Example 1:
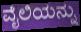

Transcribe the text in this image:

ವೈಲಿಯನ್ನು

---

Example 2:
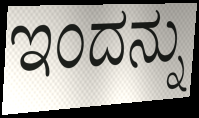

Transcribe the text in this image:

ಇಂದನ್ನು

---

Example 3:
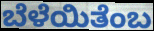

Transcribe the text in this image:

ಬೆಳೆಯಿತೆಂಬ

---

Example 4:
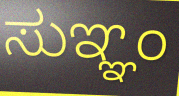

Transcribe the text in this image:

ಸುಞ್ಞಂ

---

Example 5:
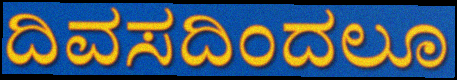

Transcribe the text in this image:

ದಿವಸದಿಂದಲೂ